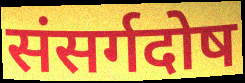
संसर्गदोष